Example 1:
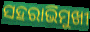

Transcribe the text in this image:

ସହରାଭିମୁଖୀ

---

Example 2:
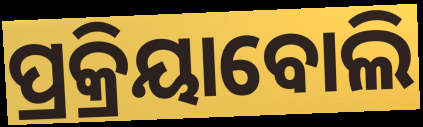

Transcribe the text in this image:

ପ୍ରକ୍ରିୟାବୋଲି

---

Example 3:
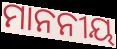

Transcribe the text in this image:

ମାନନୀୟ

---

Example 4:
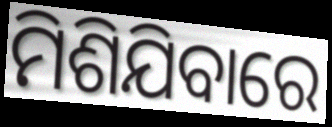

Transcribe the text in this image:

ମିଶିଯିବାରେ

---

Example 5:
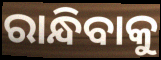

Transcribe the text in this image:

ରାନ୍ଧିବାକୁ